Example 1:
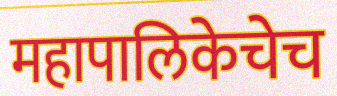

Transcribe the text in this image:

महापालिकेचेच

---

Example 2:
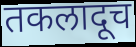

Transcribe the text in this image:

तकलादूच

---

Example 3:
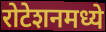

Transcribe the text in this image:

रोटेशनमध्ये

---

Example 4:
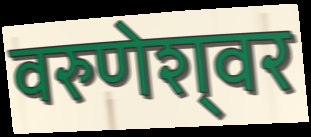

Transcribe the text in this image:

वरुणेश्वर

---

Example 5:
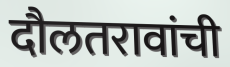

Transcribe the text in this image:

दौलतरावांची